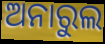
ଅନାରୁଲ